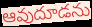
ఆవుదూడను